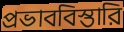
প্রভাববিস্তারি